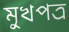
মুখপত্ৰ